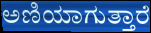
ಅಣಿಯಾಗುತ್ತಾರೆ